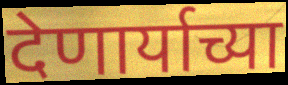
देणार्याच्या